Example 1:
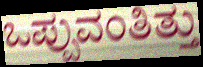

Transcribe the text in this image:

ಒಪ್ಪುವಂತಿತ್ತು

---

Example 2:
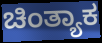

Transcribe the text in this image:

ಚಿಂತ್ಯಾಕ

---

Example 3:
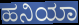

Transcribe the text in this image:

ಹನಿಯಾ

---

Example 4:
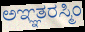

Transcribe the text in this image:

ಅಞ್ಞತರಸ್ಮಿಂ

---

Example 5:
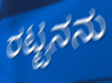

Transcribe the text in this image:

ರಟ್ಟನನು